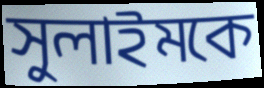
সুলাইমকে